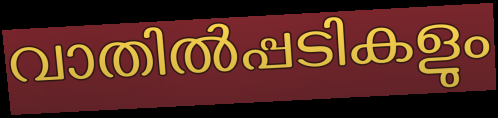
വാതിൽപ്പടികളും